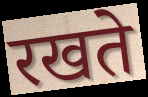
रखते